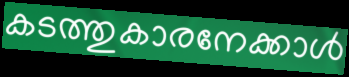
കടത്തുകാരനേക്കാൾ